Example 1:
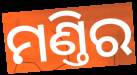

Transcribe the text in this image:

ମଣ୍ତିର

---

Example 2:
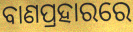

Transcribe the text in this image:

ବାଣପ୍ରହାରରେ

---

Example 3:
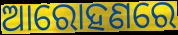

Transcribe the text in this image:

ଆରୋହଣରେ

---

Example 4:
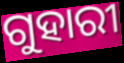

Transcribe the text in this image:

ଗୁହାରୀ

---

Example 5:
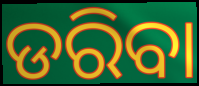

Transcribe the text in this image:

ଡରିବା